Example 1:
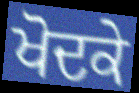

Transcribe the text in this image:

ਖੋਦਕੇ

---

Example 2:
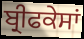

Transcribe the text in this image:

ਬ੍ਰੀਫਕੇਸਾਂ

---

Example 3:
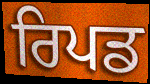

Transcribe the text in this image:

ਰਿਪਡ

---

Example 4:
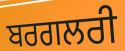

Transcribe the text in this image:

ਬਰਗਲਰੀ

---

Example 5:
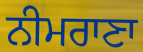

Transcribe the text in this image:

ਨੀਮਰਾਣਾ